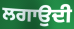
ਲਗਾਉਦੀ